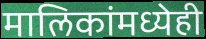
मालिकांमध्येही